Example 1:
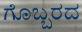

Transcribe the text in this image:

ಗೊಬ್ಬರದ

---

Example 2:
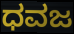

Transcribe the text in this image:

ಧವಜ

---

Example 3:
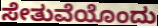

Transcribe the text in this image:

ಸೇತುವೆಯೊಂದು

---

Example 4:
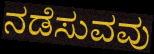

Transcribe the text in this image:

ನಡೆಸುವವು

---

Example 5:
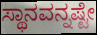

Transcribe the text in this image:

ಸ್ಥಾನವನ್ನಷ್ಟೇ